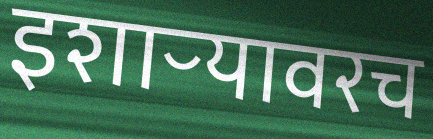
इशाऱ्यावरच